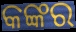
କଙ୍କର